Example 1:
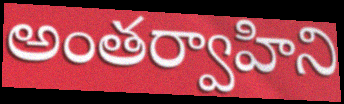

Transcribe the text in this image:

అంతర్వాహిని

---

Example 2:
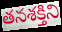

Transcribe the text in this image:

తనశక్తిని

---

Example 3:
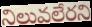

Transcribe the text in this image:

నిలువలేరని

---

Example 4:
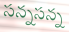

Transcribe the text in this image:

సన్నసన్న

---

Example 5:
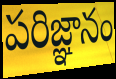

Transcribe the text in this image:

పరిజ్ఞానం